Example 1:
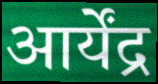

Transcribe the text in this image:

आर्येंद्र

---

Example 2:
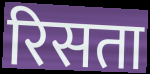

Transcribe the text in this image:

रिसता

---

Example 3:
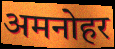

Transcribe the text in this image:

अमनोहर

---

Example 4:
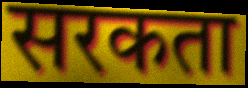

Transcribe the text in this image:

सरकता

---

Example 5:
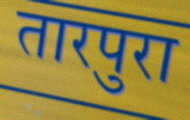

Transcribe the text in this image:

तारपुरा